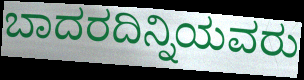
ಬಾದರದಿನ್ನಿಯವರು